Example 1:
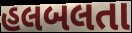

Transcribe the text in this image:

હલબલતા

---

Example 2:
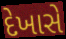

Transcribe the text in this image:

દેખાસે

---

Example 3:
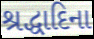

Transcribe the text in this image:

શ્રદ્ધાદિના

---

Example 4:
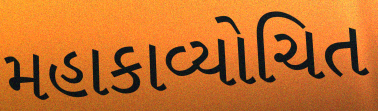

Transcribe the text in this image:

મહાકાવ્યોચિત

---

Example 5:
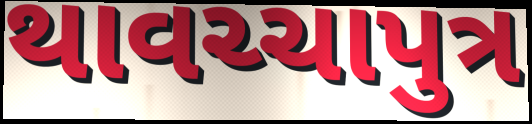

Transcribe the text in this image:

થાવચ્ચાપુત્ર